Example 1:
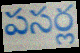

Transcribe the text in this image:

పసర్ల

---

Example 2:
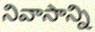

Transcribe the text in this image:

నివాసాన్ని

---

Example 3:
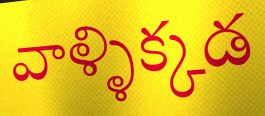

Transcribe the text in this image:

వాళ్ళిక్కడ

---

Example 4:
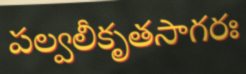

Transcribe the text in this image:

పల్వలీకృతసాగరః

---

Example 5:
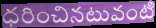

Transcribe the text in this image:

ధరించినటువంటి